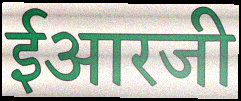
ईआरजी